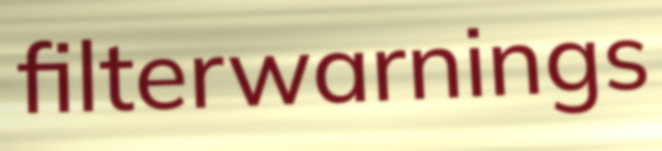
filterwarnings